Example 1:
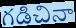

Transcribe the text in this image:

గడిచినా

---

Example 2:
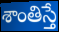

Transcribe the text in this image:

శాంతిస్తే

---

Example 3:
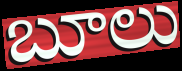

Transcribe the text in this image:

బూలు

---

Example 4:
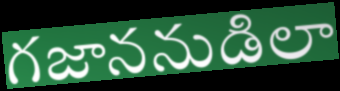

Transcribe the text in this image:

గజాననుడిలా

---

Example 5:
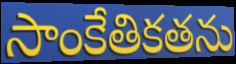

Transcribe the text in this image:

సాంకేతికతను